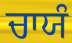
ਚਾਯੰ